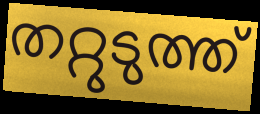
തറ്റുടുത്ത്